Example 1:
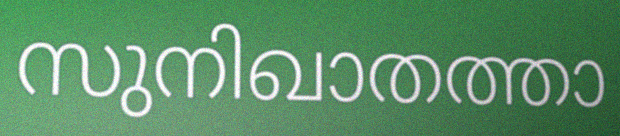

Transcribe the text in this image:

സുനിഖാതത്താ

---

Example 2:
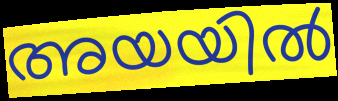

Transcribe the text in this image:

അയയിൽ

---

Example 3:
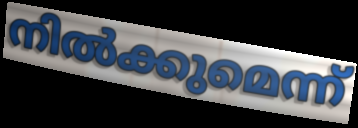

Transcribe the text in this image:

നിൽക്കുമെന്ന്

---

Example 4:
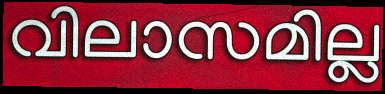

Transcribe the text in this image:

വിലാസമില്ല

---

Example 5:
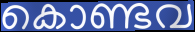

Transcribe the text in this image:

കൊണ്ടവ